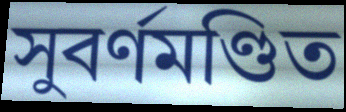
সুবর্ণমণ্ডিত